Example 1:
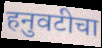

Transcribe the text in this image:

हनुवटीचा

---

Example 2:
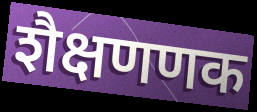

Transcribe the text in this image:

शैक्षणणक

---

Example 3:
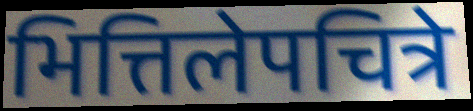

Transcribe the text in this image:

भित्तिलेपचित्रे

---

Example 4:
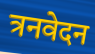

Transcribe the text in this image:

त्रनवेदन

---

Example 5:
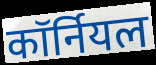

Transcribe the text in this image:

कॉर्नियल